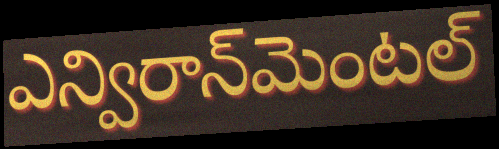
ఎన్విరాన్‌మెంటల్